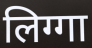
लिग्गा